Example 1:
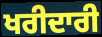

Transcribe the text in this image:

ਖਰੀਦਾਰੀ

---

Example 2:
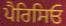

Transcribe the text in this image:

ਪੈਰਿਸਿਓ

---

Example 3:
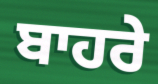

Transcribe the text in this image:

ਬਾਹਰੇ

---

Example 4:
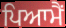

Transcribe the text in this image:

ਪਿਆਮੈਂ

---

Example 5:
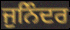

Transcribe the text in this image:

ਜੁਨਿੰਦਰ